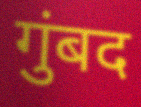
गुंबद